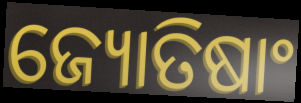
ଜ୍ୟୋତିଷାଂ